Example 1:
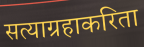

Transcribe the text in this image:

सत्याग्रहाकरिता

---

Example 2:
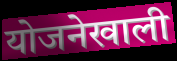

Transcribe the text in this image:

योजनेखाली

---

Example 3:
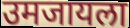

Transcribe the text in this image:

उमजायला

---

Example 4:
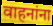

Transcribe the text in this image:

वाहनांना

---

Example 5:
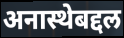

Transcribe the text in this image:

अनास्थेबद्दल